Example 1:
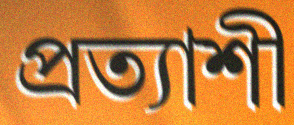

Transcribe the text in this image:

প্রত্যাশী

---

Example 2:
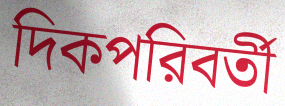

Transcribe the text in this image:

দিকপরিবর্তী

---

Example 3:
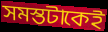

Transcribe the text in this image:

সমস্তটাকেই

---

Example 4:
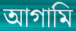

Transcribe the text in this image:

আগামি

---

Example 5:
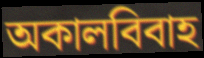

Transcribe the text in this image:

অকালবিবাহ